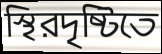
স্থিরদৃষ্টিতে